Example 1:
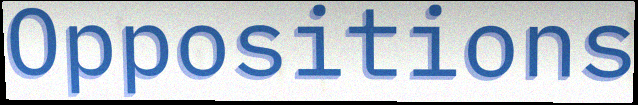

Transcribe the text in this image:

Oppositions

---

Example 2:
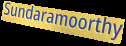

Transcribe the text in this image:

Sundaramoorthy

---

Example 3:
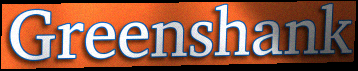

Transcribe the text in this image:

Greenshank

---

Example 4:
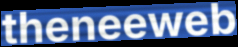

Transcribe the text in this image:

theneeweb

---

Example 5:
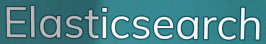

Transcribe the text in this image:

Elasticsearch